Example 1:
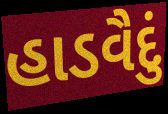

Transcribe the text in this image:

હાડવૈદું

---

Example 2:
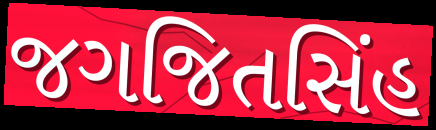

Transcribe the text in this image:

જગજિતસિંહ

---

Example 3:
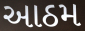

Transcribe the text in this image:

આઠમ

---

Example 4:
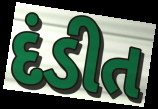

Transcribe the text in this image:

દંડીત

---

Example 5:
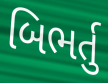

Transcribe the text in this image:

બિભર્તુ